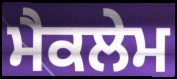
ਮੈਕਲੇਮ